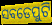
ସବଡେପୁଟି